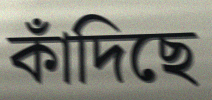
কাঁদিছে